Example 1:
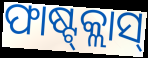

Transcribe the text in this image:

ଫାଷ୍ଟ୍‍କ୍ଲାସ୍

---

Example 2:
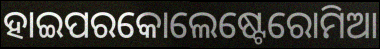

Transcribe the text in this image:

ହାଇପରକୋଲେଷ୍ଟେରୋମିଆ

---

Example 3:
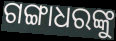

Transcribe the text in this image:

ଗଙ୍ଗାଧରଙ୍କୁ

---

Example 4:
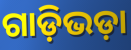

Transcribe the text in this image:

ଗାଡ଼ିଭଡ଼ା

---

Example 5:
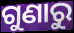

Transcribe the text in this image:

ଗୁଣାରୁ